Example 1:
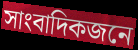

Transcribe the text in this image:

সাংবাদিকজনে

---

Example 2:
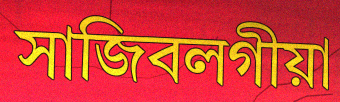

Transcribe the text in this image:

সাজিবলগীয়া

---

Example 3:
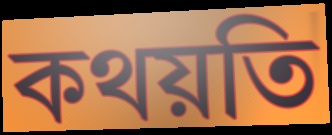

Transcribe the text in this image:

কথয়তি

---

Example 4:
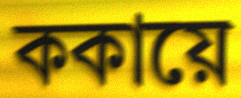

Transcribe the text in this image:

ককায়ে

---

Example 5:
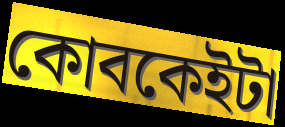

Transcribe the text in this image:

কোবকেইটা